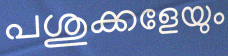
പശുക്കളേയും